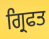
ਗ੍ਰਿਫਤ